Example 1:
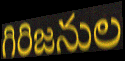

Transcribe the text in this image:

గిరిజనుల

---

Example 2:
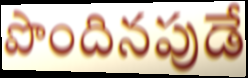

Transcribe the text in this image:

పొందినపుడే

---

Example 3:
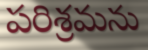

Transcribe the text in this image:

పరిశ్రమను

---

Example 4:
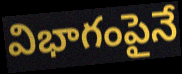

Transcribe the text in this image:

విభాగంపైనే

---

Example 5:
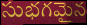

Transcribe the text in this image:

సుభగమైన